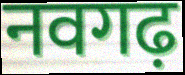
नवगढ़